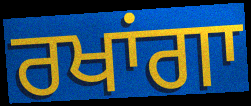
ਰਖਾਂਗਾ